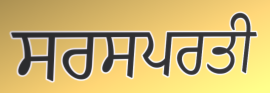
ਸਰਸਪਰਤੀ